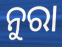
ନୁରା